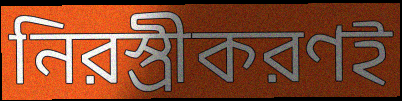
নিরস্ত্রীকরণই